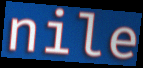
nile